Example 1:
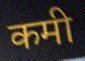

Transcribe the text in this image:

कमी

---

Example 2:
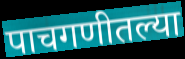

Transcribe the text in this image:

पाचगणीतल्या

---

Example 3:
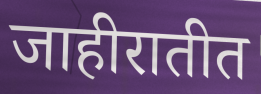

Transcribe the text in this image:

जाहीरातीत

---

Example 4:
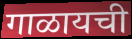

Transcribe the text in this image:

गाळायची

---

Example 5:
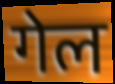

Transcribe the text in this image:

गेल